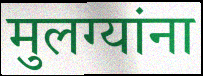
मुलग्यांना